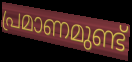
പ്രമാണമുണ്ട്